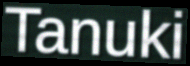
Tanuki